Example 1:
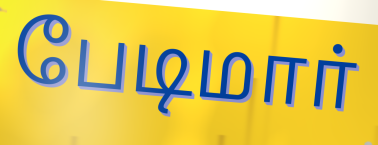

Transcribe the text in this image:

பேடிமார்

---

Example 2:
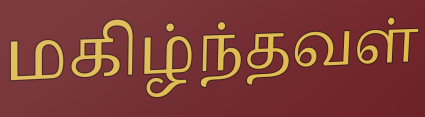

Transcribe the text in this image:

மகிழ்ந்தவள்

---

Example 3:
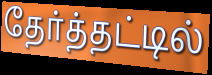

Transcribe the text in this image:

தேர்த்தட்டில்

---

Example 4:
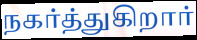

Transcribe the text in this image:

நகர்த்துகிறார்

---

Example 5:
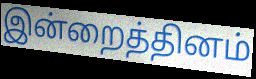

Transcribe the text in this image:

இன்றைத்தினம்